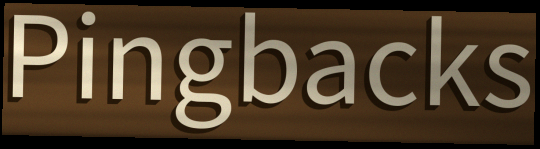
Pingbacks